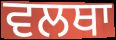
ਵਲਥਾ